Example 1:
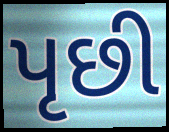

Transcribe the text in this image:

પૃછી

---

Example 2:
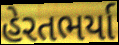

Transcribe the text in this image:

હેરતભર્યા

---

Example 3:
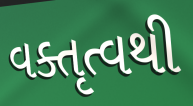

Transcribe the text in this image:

વક્તૃત્વથી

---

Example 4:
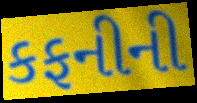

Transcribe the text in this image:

કફનીની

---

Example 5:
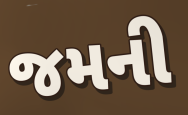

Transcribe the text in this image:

જમની